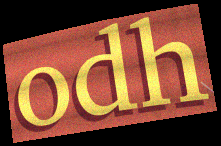
odh